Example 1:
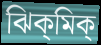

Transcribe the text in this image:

ঝিক্‌মিক্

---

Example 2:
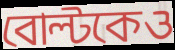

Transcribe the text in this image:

বোল্টকেও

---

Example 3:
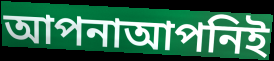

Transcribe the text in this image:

আপনাআপনিই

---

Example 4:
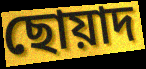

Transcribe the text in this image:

ছোয়াদ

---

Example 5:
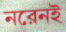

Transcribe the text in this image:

নরেনই